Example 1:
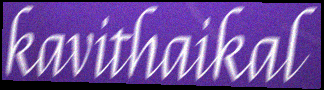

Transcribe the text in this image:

kavithaikal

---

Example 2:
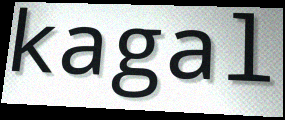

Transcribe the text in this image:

kagal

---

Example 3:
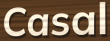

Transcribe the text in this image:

Casal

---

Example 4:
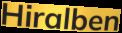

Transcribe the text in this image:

Hiralben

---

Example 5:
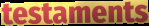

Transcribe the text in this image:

testaments